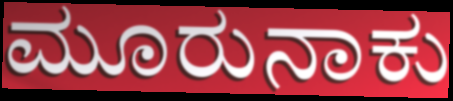
ಮೂರುನಾಕು